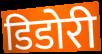
डिडोरी